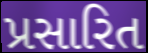
પ્રસારિત